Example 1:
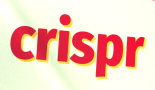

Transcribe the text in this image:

crispr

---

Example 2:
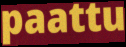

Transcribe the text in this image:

paattu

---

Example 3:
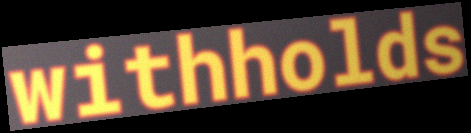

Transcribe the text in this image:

withholds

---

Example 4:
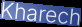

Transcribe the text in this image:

Kharech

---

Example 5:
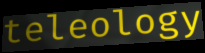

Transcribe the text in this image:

teleology